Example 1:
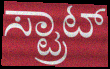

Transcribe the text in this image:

ಸ್ಟ್ರಾಟ್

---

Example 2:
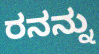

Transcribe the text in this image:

ರನನ್ನು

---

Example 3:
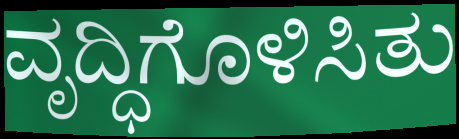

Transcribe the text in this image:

ವೃದ್ಧಿಗೊಳಿಸಿತು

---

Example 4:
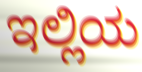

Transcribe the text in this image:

ಇಲ್ಲಿಯ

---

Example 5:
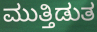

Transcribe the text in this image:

ಮುತ್ತಿಡುತ